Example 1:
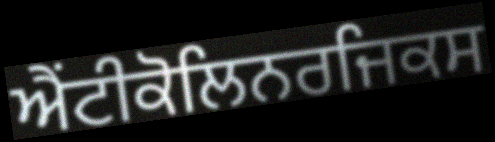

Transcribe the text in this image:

ਐਂਟੀਕੋਲਿਨਰਜਿਕਸ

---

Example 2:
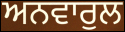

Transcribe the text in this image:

ਅਨਵਾਰੁਲ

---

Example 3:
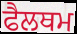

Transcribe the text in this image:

ਫੈਲਥਮ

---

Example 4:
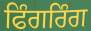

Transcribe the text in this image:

ਫਿੰਗਰਿੰਗ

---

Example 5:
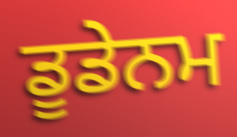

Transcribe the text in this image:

ਡੂਡੇਨਮ